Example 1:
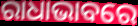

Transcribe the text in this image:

ରାଧାଭାବରେ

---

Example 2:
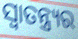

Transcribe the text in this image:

ସ୍ୱାତନ୍ତ୍ର୍ୟର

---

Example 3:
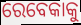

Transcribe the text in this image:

ରେବେକାକୁ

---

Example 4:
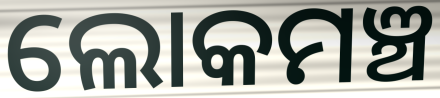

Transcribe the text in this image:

ଲୋକମଞ୍ଚ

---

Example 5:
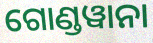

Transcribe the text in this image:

ଗୋଣ୍ଡୱାନା